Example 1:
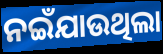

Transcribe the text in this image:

ନଇଁଯାଉଥିଲା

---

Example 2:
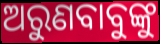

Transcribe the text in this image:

ଅରୁଣବାବୁଙ୍କୁ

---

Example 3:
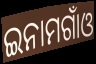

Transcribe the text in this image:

ଇନାମଗାଁଓ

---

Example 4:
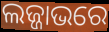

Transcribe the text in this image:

ଲଜ୍ଜାଭରେ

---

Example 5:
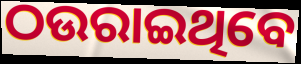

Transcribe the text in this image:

ଠଉରାଇଥିବେ